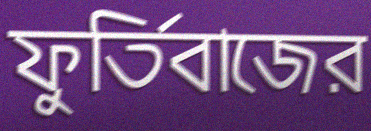
ফুর্তিবাজের